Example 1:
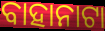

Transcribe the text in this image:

ବାହାନାଟା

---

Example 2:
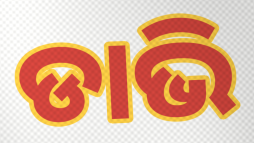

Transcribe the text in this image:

ଡାଭି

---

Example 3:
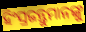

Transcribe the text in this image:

ହିଂସ୍ରଜନ୍ତୁମାନଙ୍କୁ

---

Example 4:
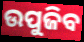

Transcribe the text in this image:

ଉପୁଜିବ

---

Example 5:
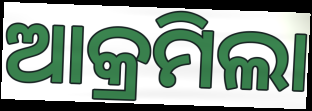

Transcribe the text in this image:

ଆକ୍ରମିଲା